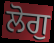
ਲੋਗੁ